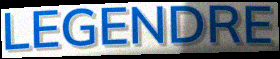
LEGENDRE